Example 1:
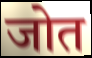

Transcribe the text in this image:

जोत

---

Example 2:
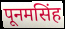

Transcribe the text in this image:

पूनमसिंह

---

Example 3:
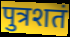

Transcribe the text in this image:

पुत्रशतं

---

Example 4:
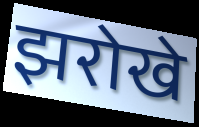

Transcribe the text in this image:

झरोखे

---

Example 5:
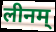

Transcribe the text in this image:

लीनम्